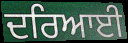
ਦਰਿਆਈ